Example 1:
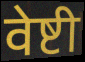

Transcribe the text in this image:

वेष्टी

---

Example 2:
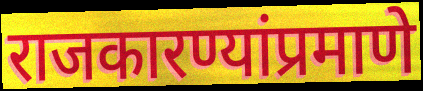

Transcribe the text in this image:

राजकारण्यांप्रमाणे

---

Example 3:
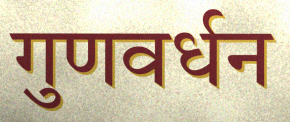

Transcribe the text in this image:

गुणवर्धन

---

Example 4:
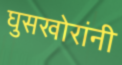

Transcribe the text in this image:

घुसखोरांनी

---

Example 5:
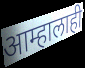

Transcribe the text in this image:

आम्हालाही